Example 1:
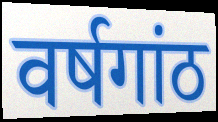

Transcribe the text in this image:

वर्षगांठ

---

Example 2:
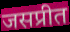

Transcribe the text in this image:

जसप्रीत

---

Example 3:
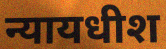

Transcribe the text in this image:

न्यायधीश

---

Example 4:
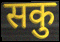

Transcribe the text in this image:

सकु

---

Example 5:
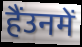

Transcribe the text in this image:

हैंउनमें